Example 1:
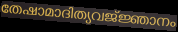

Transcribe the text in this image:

തേഷാമാദിത്യവജ്ജ്ഞാനം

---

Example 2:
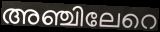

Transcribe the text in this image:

അഞ്ചിലേറെ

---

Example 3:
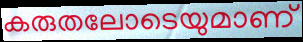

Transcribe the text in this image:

കരുതലോടെയുമാണ്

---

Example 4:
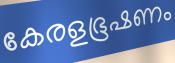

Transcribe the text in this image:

കേരളഭൂഷണം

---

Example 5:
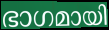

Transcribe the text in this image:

ഭാഗമായി